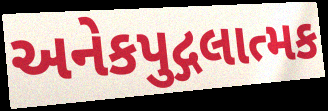
અનેકપુદ્ગલાત્મક